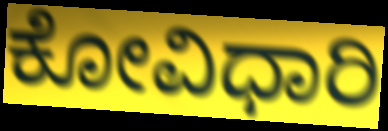
ಕೋವಿಧಾರಿ